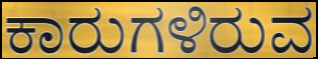
ಕಾರುಗಳಿರುವ